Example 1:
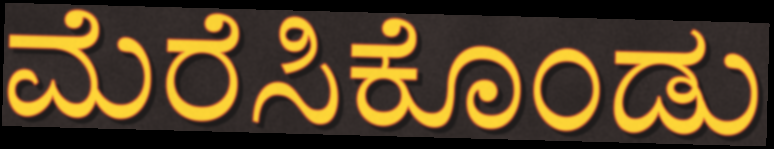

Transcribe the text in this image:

ಮೆರೆಸಿಕೊಂಡು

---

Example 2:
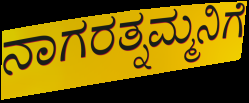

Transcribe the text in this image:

ನಾಗರತ್ನಮ್ಮನಿಗೆ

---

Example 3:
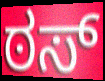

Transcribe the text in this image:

ಠಸ್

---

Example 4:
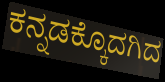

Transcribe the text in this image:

ಕನ್ನಡಕ್ಕೊದಗಿದ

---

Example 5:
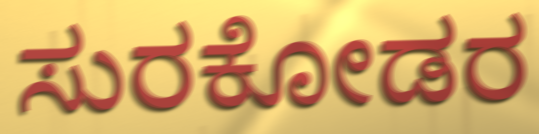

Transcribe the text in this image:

ಸುರಕೋಡರ